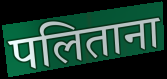
पलिताना